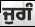
ਜੁਗੰ